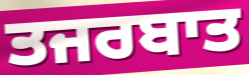
ਤਜਰਬਾਤ